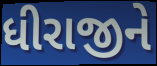
ધીરાજીને